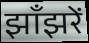
झाँझरें